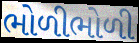
ભોળીભોળી